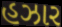
હઝાર